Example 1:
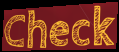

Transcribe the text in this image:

Check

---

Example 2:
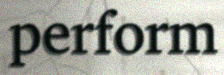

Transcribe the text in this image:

perform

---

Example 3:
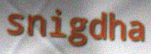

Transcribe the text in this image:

snigdha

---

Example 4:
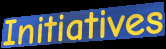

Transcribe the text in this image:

Initiatives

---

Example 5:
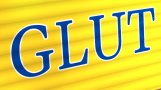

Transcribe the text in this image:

GLUT